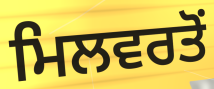
ਮਿਲਵਰਤੋਂ